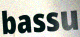
bassu